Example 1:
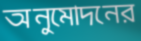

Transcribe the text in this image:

অনুমোদনের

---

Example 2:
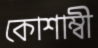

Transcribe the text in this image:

কোশাম্বী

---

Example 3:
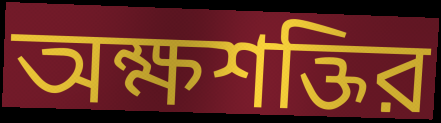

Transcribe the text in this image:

অক্ষশক্তির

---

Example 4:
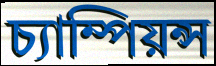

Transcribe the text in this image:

চ্যাম্পিয়ন্স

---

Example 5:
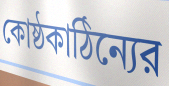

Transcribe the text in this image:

কোষ্ঠকাঠিন্যের